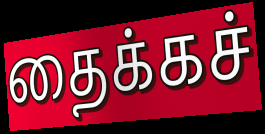
தைக்கச்